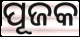
ପୂଜକ